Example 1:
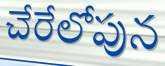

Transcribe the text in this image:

చేరేలోపున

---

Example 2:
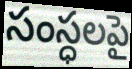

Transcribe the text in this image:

సంస్ధలపై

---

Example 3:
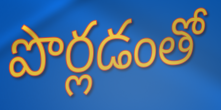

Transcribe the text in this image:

పొర్లడంతో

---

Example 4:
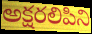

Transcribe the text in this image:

అక్షరలిపిని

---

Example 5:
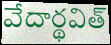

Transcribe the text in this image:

వేదార్థవిత్